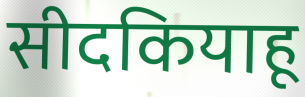
सीदकियाहू